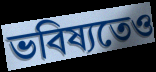
ভবিষ্যতেও